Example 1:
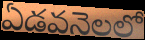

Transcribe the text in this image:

ఏడవనెలలో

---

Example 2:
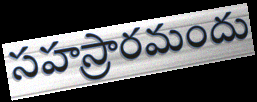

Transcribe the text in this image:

సహస్రారమందు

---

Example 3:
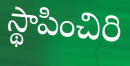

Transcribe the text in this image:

స్థాపించిరి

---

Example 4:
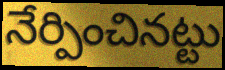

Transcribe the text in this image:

నేర్పించినట్టు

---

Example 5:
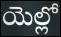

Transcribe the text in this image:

యెల్లో